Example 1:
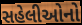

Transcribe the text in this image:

સહેલીઓનો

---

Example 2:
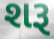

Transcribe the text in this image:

શરૂ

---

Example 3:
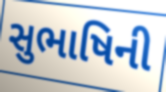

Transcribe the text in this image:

સુભાષિની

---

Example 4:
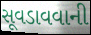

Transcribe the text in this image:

સૂવડાવવાની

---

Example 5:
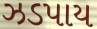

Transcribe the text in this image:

ઝડપાય